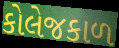
કોલેજકાળ